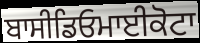
ਬਾਸੀਡਿਓਮਾਈਕੋਟਾ